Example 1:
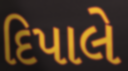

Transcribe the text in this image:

દિપાલે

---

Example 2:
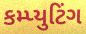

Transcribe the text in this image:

કમ્પ્યુટિંગ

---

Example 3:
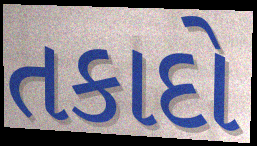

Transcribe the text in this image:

તકાદો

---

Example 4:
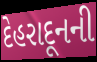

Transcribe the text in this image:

દેહરાદૂનની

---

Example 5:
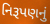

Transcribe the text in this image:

નિરૂપણનું